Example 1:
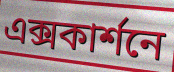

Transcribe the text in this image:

এক্সকার্শনে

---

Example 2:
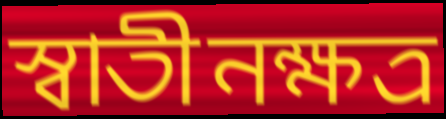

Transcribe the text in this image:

স্বাতীনক্ষত্র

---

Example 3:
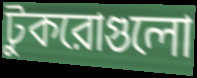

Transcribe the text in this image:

টুকরোগুলো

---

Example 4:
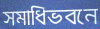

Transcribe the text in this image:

সমাধিভবনে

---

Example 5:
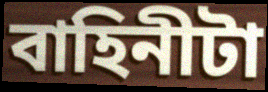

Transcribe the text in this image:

বাহিনীটা